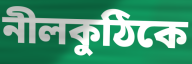
নীলকুঠিকে